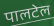
पालटेल